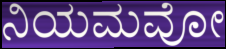
ನಿಯಮವೋ